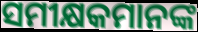
ସମୀକ୍ଷକମାନଙ୍କ